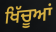
ਖਿੱਚੂਆਂ